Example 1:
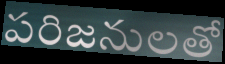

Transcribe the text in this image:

పరిజనులతో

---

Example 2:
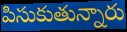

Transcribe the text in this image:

పిసుకుతున్నారు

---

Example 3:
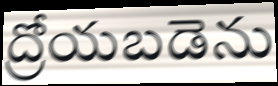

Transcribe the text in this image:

ద్రోయబడెను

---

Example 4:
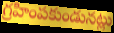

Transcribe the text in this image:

గ్రహింపకుండునట్లు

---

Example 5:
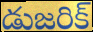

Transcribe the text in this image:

డుజరిక్